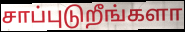
சாப்புடுறீங்களா